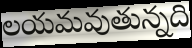
లయమవుతున్నది